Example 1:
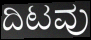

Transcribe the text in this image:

ದಿಟವು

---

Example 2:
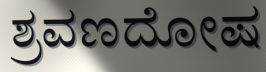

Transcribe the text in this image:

ಶ್ರವಣದೋಷ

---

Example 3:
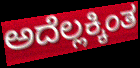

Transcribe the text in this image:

ಅದೆಲ್ಲಕ್ಕಿಂತ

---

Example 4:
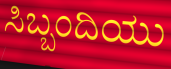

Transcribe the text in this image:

ಸಿಬ್ಬಂದಿಯು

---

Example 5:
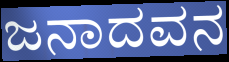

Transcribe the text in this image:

ಜನಾದವನ